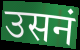
उसनं